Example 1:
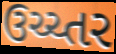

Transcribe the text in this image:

ઉચ્ચ્તર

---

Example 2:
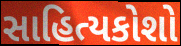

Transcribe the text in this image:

સાહિત્યકોશો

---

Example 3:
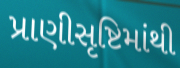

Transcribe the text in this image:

પ્રાણીસૃષ્ટિમાંથી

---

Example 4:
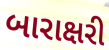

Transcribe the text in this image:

બારાક્ષરી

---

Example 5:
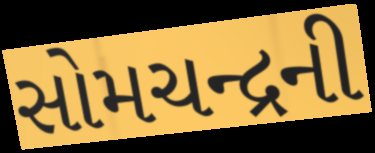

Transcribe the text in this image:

સોમચન્દ્રની